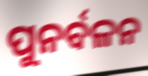
ପୁନର୍ବଳନ